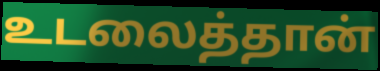
உடலைத்தான்